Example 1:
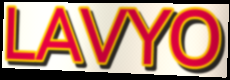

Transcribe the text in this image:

LAVYO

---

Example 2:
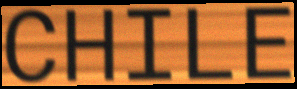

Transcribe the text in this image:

CHILE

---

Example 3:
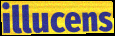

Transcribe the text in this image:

illucens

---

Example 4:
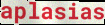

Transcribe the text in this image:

aplasias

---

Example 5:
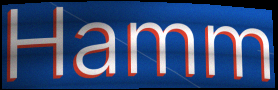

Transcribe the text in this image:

Hamm